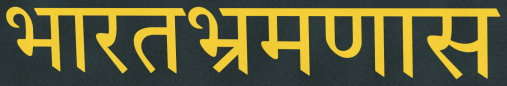
भारतभ्रमणास